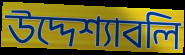
উদ্দেশ্যাবলি